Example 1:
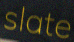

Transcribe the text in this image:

slate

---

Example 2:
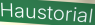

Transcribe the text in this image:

Haustorial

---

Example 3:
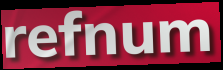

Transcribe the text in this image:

refnum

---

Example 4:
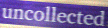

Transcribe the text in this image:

uncollected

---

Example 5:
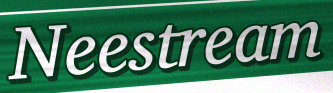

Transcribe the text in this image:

Neestream